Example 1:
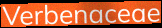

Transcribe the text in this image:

Verbenaceae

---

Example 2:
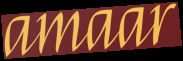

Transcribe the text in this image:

amaar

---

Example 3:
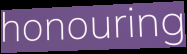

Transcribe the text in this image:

honouring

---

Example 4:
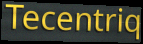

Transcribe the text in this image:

Tecentriq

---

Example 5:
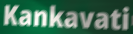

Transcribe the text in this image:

Kankavati